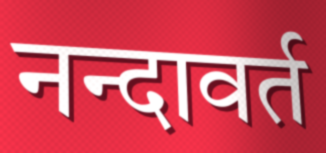
नन्दावर्त